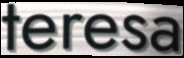
teresa